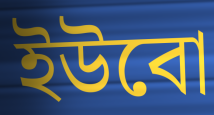
ইউবো